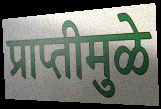
प्राप्तीमुळे